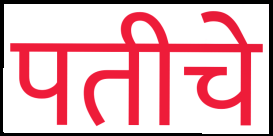
पतीचे